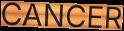
CANCER